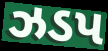
ઝડપ